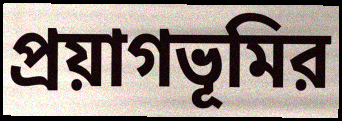
প্রয়াগভূমির